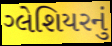
ગ્લેશિયરનું